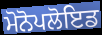
ਮੋਨੋਪਲੋਇਡ